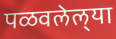
पळवलेल्या